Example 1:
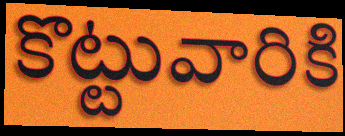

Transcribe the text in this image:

కొట్టువారికి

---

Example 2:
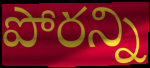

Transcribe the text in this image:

పోరన్ని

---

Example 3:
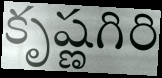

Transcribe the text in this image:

కృష్ణగిరి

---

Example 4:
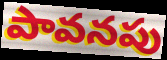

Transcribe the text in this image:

పావనపు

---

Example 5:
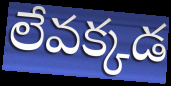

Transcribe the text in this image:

లేవక్కడ